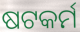
ଷଟକର୍ମ